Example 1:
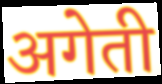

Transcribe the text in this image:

अगेती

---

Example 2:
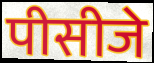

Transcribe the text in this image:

पीसीजे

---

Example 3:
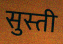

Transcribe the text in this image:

सुस्ती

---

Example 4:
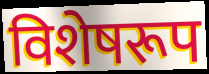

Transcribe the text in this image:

विशेषरूप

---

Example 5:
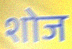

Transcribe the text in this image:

शोज